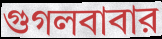
গুগলবাবার